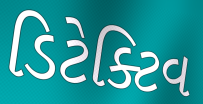
ડિટેક્ટિવ